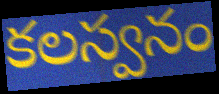
కలస్వనం